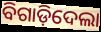
ବିଗାଡ଼ିଦେଲା